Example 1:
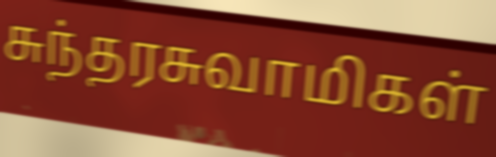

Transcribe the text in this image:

சுந்தரசுவாமிகள்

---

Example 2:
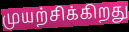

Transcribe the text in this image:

முயற்சிக்கிறது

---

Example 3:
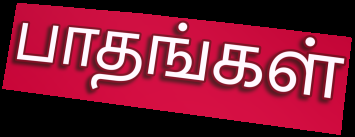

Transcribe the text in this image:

பாதங்கள்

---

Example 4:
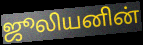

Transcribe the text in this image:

ஜூலியனின்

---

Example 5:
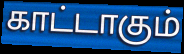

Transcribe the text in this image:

காட்டாகும்